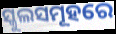
ସ୍କୁଲସମୂହରେ